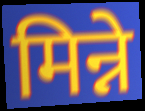
मिन्ने